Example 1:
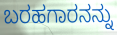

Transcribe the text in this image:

ಬರಹಗಾರನನ್ನು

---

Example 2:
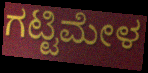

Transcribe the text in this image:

ಗಟ್ಟಿಮೇಳ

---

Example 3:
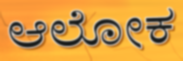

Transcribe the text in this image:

ಆಲೋಕ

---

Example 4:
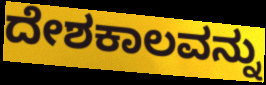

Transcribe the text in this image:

ದೇಶಕಾಲವನ್ನು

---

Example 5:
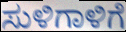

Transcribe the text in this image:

ಸುಳಿಗಾಳಿಗೆ